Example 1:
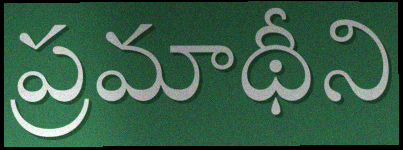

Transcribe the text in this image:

ప్రమాథీని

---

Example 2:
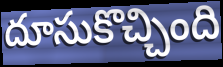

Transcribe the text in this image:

దూసుకొచ్చింది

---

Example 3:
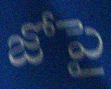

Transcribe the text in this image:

జోపై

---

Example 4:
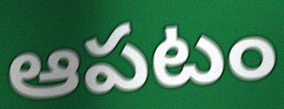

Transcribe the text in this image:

ఆపటం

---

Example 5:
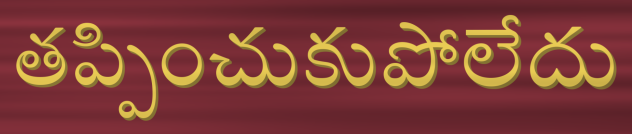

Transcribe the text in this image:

తప్పించుకుపోలేదు